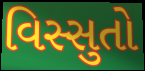
વિસ્સુતો